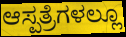
ಆಸ್ಪತ್ರೆಗಳಲ್ಲೂ